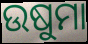
ଉଷୁମା